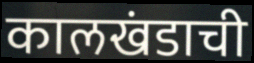
कालखंडाची